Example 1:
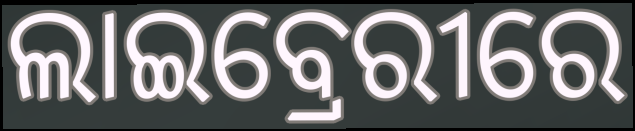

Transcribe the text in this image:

ଲାଇବ୍ରେରୀରେ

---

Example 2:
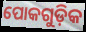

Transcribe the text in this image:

ପୋକଗୁଡ଼ିକ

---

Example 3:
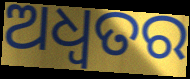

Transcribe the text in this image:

ଅଧ୍ଵତର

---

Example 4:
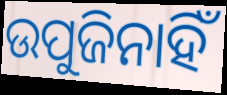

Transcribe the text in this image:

ଉପୁଜିନାହିଁ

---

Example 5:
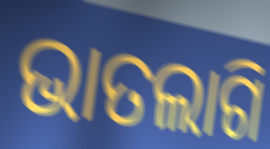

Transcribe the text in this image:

ଭାତଲାଗି